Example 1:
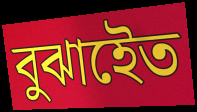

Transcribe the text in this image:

বুঝাইেত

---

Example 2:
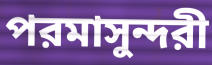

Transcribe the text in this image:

পরমাসুন্দরী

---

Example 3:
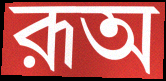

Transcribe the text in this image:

রূঅ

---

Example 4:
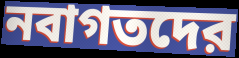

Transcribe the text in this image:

নবাগতদের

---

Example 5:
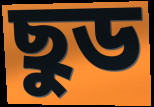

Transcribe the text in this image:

ছুড